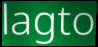
lagto